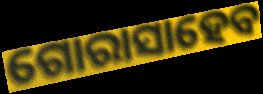
ଗୋରାସାହେବ